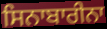
ਸਿਨਾਬਾਰੀਨਾ